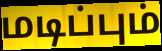
மடிப்பும்